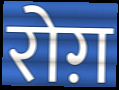
रोग़